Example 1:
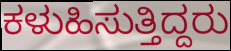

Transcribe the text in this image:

ಕಳುಹಿಸುತ್ತಿದ್ದರು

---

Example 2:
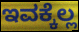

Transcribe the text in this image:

ಇವಕ್ಕೆಲ್ಲ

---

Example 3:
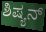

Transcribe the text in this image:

ಶಿಷ್ಯನ್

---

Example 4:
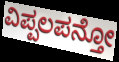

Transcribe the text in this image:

ವಿಪ್ಪಲಪನ್ತೋ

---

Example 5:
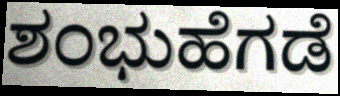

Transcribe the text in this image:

ಶಂಭುಹೆಗಡೆ